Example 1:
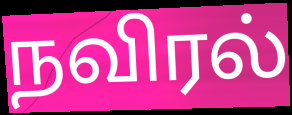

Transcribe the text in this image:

நவிரல்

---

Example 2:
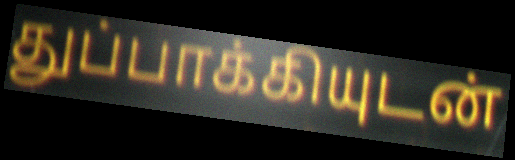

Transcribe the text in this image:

துப்பாக்கியுடன்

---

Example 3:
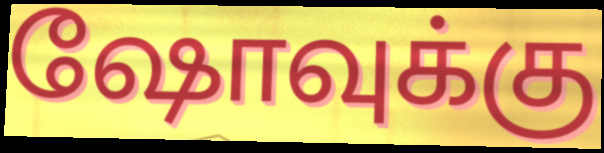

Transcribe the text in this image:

ஷோவுக்கு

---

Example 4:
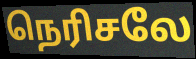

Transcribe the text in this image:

நெரிசலே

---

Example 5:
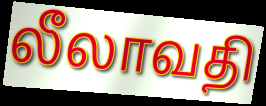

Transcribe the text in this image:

லீலாவதி